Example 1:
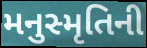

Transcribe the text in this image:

મનુસ્મૃતિની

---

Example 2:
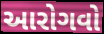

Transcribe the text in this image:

આરોગવો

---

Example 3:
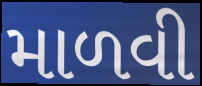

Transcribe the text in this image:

માળવી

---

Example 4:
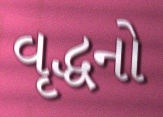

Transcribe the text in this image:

વૃદ્ધનો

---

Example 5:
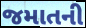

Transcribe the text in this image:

જમાતની